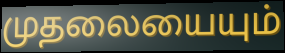
முதலையையும்